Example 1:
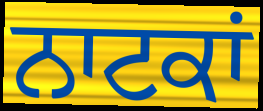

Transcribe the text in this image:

ਨਾਟਕਾਂ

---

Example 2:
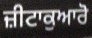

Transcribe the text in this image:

ਜ਼ੀਟਾਕੁਆਰੋ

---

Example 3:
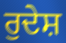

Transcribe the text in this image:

ਰੁਦੇਸ਼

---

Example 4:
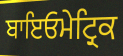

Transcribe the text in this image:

ਬਾਇਓਮੇਟ੍ਰਿਕ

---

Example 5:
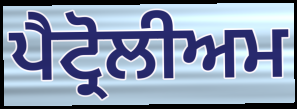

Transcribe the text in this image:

ਪੈਟ੍ਰੋਲੀਅਮ